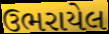
ઉભરાયેલ